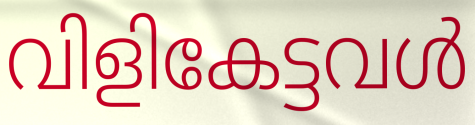
വിളികേട്ടവൾ